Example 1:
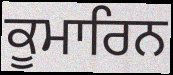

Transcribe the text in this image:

ਕੂਮਾਰਿਨ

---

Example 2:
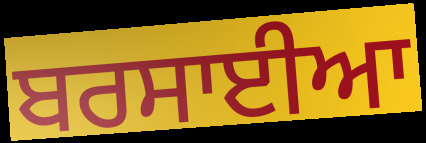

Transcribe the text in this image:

ਬਰਸਾਈਆ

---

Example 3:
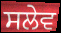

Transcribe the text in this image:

ਸਲੇਵ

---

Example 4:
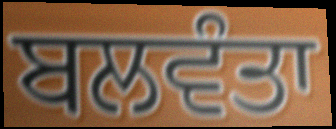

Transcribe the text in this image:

ਬਲਵੰਤਾ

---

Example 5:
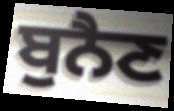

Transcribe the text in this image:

ਬੁਨੈਣ